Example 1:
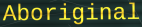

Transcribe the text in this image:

Aboriginal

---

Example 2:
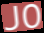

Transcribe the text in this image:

JO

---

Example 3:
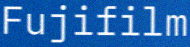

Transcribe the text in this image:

Fujifilm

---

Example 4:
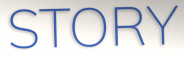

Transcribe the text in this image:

STORY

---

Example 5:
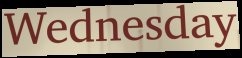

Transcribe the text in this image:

Wednesday